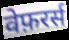
वेफ़रर्स